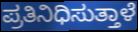
ಪ್ರತಿನಿಧಿಸುತ್ತಾಳೆ